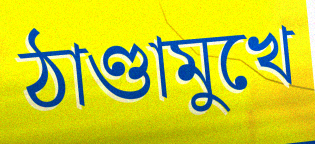
ঠাণ্ডামুখে